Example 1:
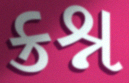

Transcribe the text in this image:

ક્રશ્ન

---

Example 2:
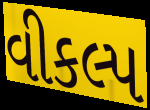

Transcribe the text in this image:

વીકલ્પ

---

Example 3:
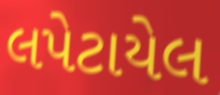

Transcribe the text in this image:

લપેટાયેલ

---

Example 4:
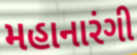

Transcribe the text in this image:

મહાનારંગી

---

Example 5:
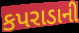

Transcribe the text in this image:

કપરાડાની